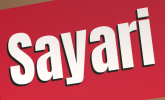
Sayari